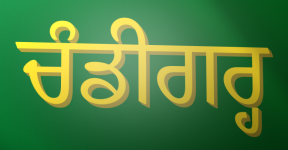
ਚੰਡੀਗਰ੍ਹ